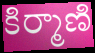
కిర్మాణి